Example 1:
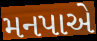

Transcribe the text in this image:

મનપાએ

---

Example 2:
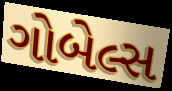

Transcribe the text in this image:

ગોબેલ્સ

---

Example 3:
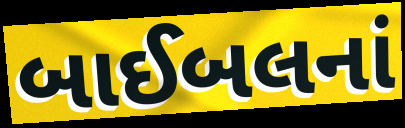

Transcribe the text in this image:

બાઈબલનાં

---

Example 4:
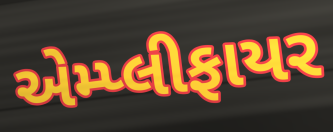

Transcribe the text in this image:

એમ્પ્લીફાયર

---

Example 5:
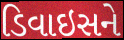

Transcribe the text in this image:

ડિવાઇસને